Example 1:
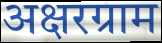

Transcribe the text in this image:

अक्षरग्राम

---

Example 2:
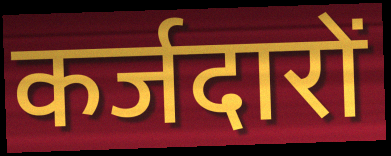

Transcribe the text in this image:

कर्जदारों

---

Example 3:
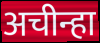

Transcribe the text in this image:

अचीन्हा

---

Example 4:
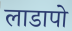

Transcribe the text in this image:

लाडापो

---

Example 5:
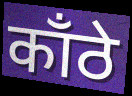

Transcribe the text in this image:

काँठे